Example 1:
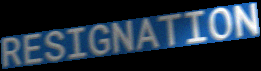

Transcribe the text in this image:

RESIGNATION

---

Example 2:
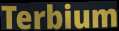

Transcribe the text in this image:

Terbium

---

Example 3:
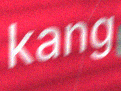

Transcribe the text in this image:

kang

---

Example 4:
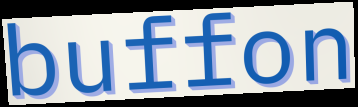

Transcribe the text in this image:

buffon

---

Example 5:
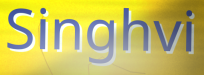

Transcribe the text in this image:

Singhvi